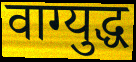
वाग्युद्ध